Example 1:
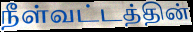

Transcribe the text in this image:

நீள்வட்டத்தின்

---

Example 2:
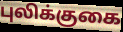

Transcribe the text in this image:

புலிக்குகை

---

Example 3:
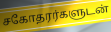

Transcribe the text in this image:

சகோதரர்களுடன்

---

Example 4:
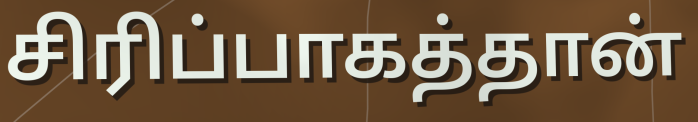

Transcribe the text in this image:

சிரிப்பாகத்தான்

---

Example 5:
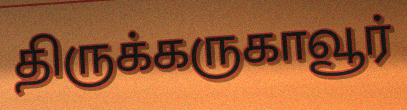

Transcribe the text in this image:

திருக்கருகாவூர்